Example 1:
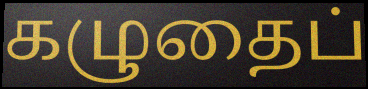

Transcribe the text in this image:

கழுதைப்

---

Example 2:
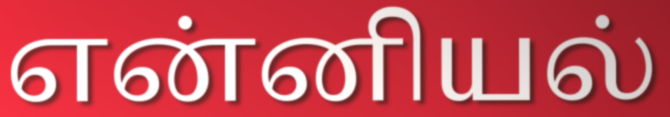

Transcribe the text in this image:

என்னியல்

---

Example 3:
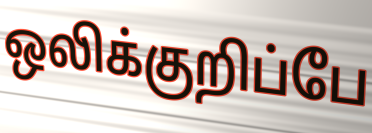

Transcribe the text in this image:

ஒலிக்குறிப்பே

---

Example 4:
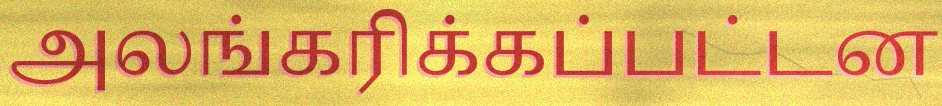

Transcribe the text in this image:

அலங்கரிக்கப்பட்டன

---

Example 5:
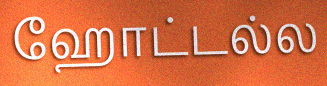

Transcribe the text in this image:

ஹோட்டல்ல